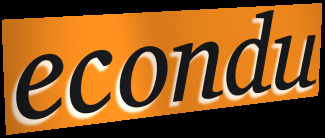
econdu